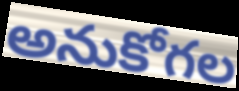
అనుకోగల